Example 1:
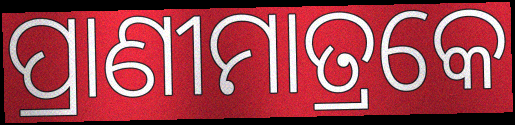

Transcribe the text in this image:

ପ୍ରାଣୀମାତ୍ରକେ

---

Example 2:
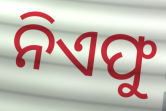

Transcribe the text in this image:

ନିଏଫୁ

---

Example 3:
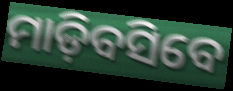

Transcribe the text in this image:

ମାଡ଼ିବସିବେ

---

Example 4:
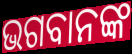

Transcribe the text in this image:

ଭଗବାନଙ୍କ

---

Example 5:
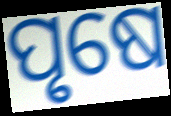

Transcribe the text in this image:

ପୃଷେ